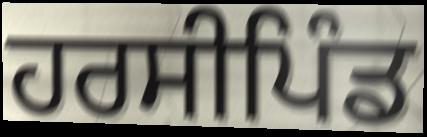
ਹਰਸੀਪਿੰਡ